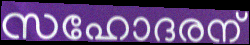
സഹോദരന്